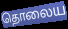
தொலைய